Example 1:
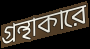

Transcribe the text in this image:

গ্রন্থাকারে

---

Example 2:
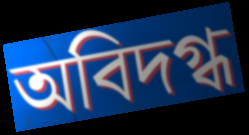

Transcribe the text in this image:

অবিদগ্ধ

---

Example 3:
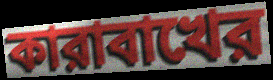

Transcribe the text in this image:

কারাবাখের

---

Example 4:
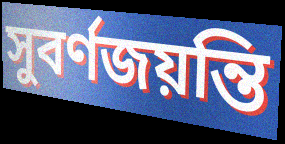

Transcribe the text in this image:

সুবর্ণজয়ন্তি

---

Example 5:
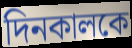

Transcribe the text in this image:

দিনকালকে